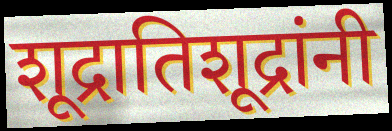
शूद्रातिशूद्रांनी